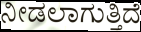
ನೀಡಲಾಗುತ್ತಿದೆ